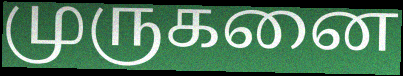
முருகனை